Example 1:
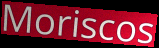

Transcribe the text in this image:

Moriscos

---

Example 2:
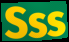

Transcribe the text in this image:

Sss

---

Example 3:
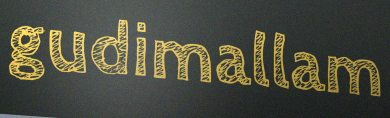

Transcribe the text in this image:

gudimallam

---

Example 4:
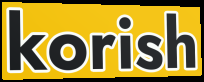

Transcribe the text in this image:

korish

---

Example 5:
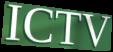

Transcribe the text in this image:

ICTV